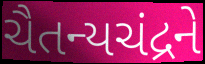
ચૈતન્યચંદ્રને